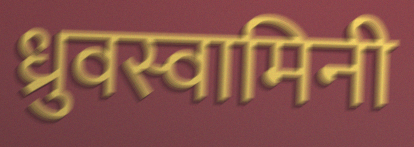
ध्रुवस्वामिनी